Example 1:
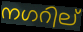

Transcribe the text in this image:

നഗറില്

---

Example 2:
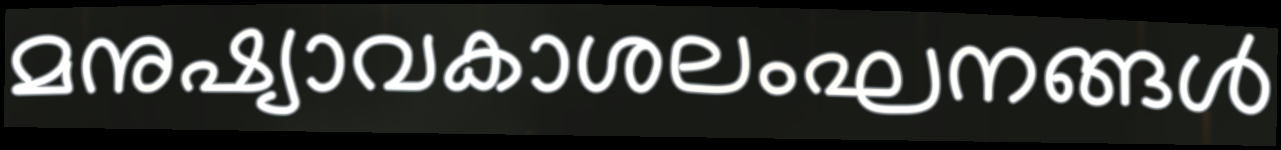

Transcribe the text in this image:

മനുഷ്യാവകാശലംഘനങ്ങൾ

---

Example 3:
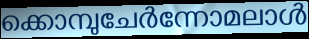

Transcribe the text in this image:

ക്കൊമ്പുചേർന്നോമലാൾ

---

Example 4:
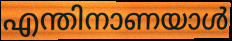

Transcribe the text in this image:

എന്തിനാണയാൾ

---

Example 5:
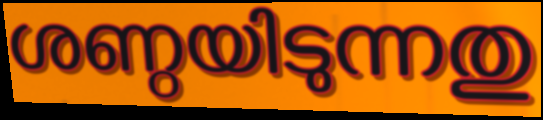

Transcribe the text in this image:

ശണ്ഠയിടുന്നതു